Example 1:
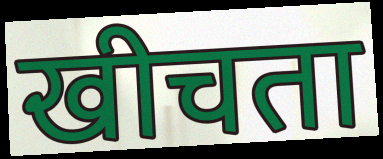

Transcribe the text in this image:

खीचता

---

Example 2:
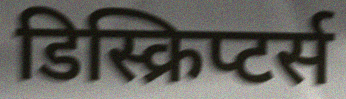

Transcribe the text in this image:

डिस्क्रिप्टर्स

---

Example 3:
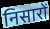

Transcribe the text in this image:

निसारों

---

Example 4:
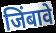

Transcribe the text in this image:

जिंबावे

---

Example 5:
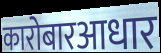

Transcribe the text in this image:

कारोबारआधार